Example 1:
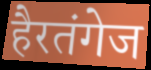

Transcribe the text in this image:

हैरतंगेज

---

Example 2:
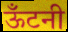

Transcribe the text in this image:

ऊँटनी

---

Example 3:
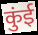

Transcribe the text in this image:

कुंई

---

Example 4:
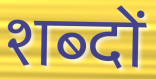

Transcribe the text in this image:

शब्‍दों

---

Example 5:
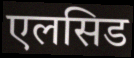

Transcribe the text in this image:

एलसिड